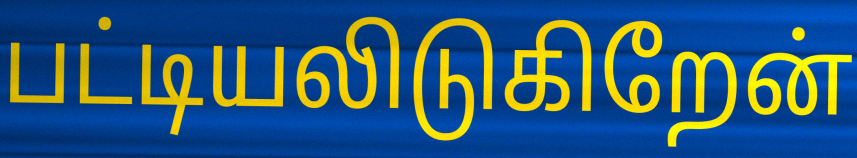
பட்டியலிடுகிறேன்